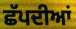
ਛੱਪਦੀਆਂ